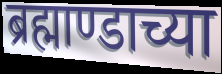
ब्रह्माण्डाच्या